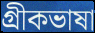
গ্রীকভাষা